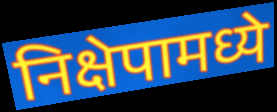
निक्षेपामध्ये